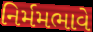
નિર્મમભાવે